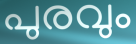
പുരവും